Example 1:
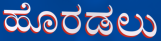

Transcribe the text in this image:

ಹೊರಡಲು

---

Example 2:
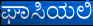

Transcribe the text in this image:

ಘಾಸಿಯಲಿ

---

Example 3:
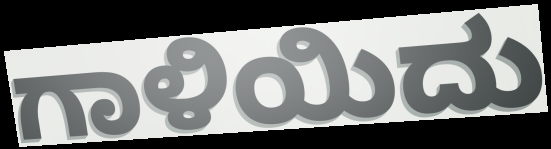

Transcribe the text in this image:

ಗಾಳಿಯಿದು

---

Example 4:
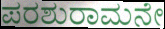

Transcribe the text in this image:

ಪರಶುರಾಮನೇ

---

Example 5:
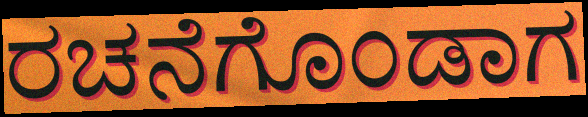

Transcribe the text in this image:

ರಚನೆಗೊಂಡಾಗ